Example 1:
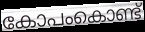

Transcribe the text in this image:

കോപംകൊണ്ട്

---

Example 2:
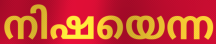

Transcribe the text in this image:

നിഷയെന്ന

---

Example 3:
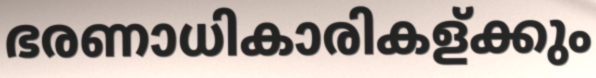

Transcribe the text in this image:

ഭരണാധികാരികള്ക്കും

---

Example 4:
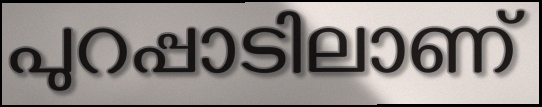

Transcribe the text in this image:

പുറപ്പാടിലാണ്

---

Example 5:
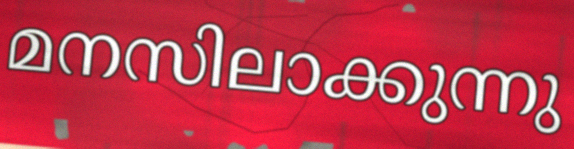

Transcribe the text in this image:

മനസിലാക്കുന്നു